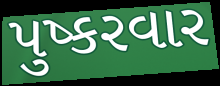
પુષ્કરવાર